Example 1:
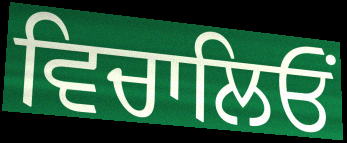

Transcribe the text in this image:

ਵਿਚਾਲਿਓਂ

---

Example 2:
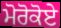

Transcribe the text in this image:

ਮੋਰੋਕੋਏ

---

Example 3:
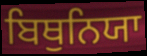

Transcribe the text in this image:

ਬਿਥੁਨਿਯਾ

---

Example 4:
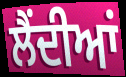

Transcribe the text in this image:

ਲੈਂਦੀਆਂ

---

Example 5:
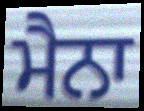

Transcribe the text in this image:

ਮੈਨਾ